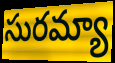
సురమ్యా